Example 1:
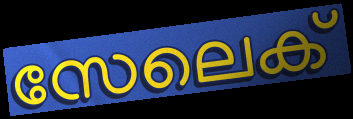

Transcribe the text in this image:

സേലെക്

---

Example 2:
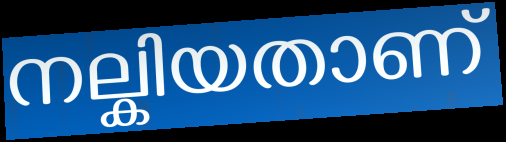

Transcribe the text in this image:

നല്കിയതാണ്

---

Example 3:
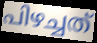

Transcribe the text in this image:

പിഴച്ചത്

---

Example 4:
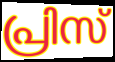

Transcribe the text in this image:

പ്രിസ്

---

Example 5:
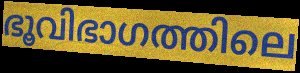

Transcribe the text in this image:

ഭൂവിഭാഗത്തിലെ